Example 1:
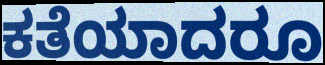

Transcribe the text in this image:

ಕತೆಯಾದರೂ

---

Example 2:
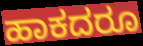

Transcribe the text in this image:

ಹಾಕದರೂ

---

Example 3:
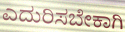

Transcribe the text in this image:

ಎದುರಿಸಬೇಕಾಗಿ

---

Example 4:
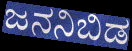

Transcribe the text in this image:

ಜನನಿಬಿಡ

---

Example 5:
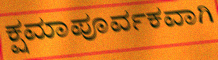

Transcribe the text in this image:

ಕ್ಷಮಾಪೂರ್ವಕವಾಗಿ